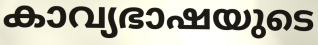
കാവ്യഭാഷയുടെ